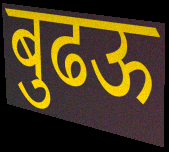
बुढऊ